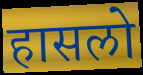
हासलो